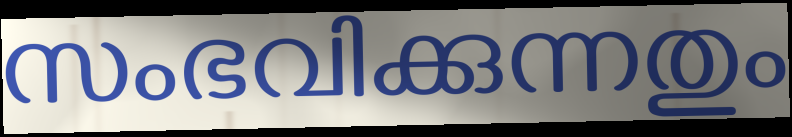
സംഭവിക്കുന്നതും